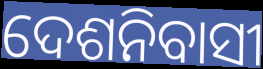
ଦେଶନିବାସୀ